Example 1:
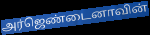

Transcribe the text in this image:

அர்ஜெண்டைனாவின்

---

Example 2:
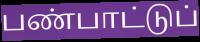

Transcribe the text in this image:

பண்பாட்டுப்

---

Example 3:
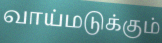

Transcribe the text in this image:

வாய்மடுக்கும்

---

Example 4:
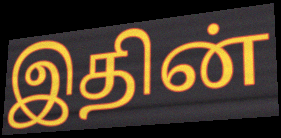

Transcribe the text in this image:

இதின்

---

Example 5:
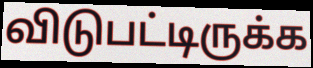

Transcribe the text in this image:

விடுபட்டிருக்க